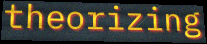
theorizing